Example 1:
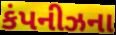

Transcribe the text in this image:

કંપનીઝના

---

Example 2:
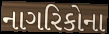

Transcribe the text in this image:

નાગરિકોના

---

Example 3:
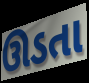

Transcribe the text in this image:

ઊડતા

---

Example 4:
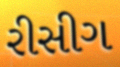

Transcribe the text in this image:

રીસીગ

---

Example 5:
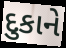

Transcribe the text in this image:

દુકાને